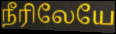
நீரிலேயே